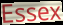
Essex